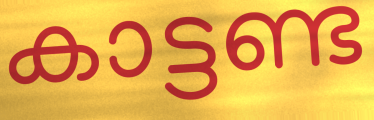
കാട്ടണ്ട